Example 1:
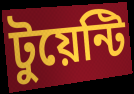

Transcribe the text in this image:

টুয়েন্টি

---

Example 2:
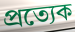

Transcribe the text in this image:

প্রত্যেক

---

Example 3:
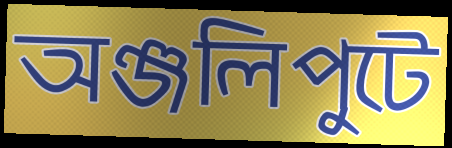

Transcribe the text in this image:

অঞ্জলিপুটে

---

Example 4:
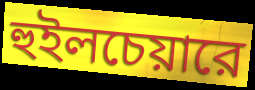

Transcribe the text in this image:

হুইলচেয়ারে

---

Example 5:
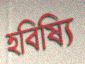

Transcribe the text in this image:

হবিষ্যি